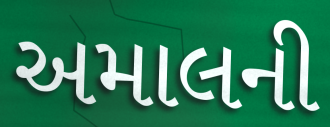
અમાલની